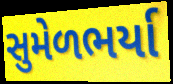
સુમેળભર્યા